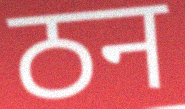
ठन